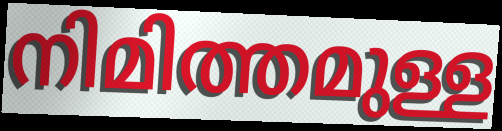
നിമിത്തമുള്ള